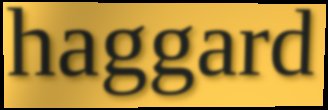
haggard